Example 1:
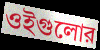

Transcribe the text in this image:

ওইগুলোর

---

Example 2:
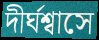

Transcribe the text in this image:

দীর্ঘশ্বাসে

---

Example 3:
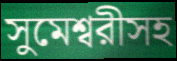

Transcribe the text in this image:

সুমেশ্বরীসহ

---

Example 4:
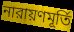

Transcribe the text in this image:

নারায়ণমূর্তি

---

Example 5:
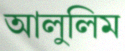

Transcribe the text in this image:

আলুলিম